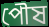
পৌষ